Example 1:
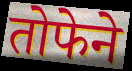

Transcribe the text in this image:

तोफेने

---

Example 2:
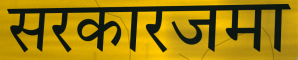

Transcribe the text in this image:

सरकारजमा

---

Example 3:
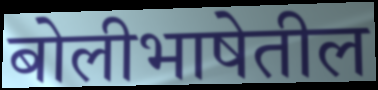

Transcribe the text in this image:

बोलीभाषेतील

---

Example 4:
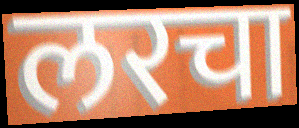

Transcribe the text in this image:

लरचा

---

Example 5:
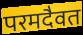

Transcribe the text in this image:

परमदैवत